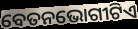
ବେତନଭୋଗୀଟିଏ